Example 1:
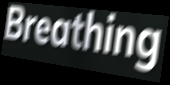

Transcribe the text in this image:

Breathing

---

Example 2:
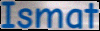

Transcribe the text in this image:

Ismat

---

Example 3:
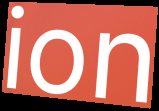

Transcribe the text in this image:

ion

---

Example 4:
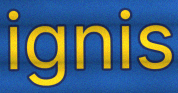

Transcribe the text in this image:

ignis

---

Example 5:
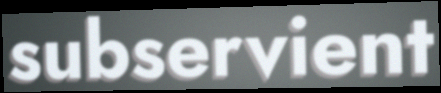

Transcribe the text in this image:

subservient